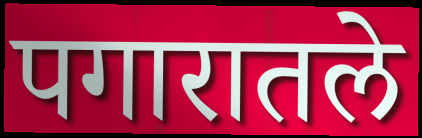
पगारातले